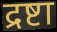
द्रष्टा